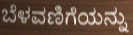
ಬೆಳವಣಿಗೆಯನ್ನು